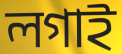
লগাই